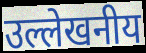
उल्लेखनीय